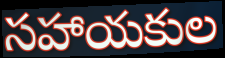
సహాయకుల